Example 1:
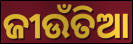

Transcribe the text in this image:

ଜୀଉଁତିଆ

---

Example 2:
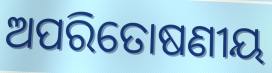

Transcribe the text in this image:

ଅପରିତୋଷଣୀୟ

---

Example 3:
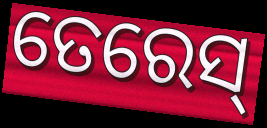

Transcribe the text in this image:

ତେରେସ୍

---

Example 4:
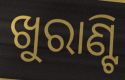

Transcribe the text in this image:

ଖୁରାଣ୍ଟି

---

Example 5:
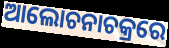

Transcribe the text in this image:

ଆଲୋଚନାଚକ୍ରରେ